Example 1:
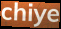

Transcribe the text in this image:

chiye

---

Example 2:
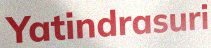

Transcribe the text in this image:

Yatindrasuri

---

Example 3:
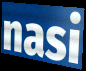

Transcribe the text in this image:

nasi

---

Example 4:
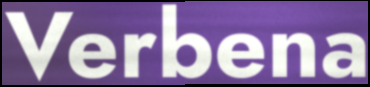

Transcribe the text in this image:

Verbena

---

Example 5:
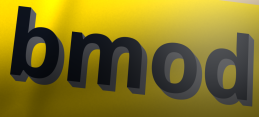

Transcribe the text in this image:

bmod